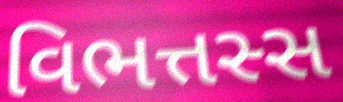
વિભત્તસ્સ